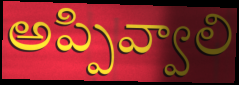
అప్పివ్వాలి